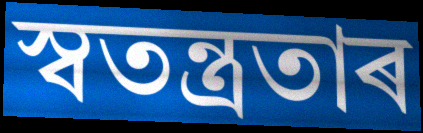
স্বতন্ত্ৰতাৰ